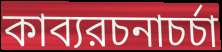
কাব্যরচনাচর্চা